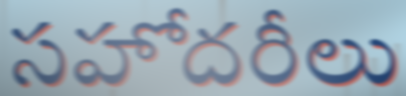
సహోదరీలు